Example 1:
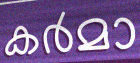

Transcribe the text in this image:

കർമാ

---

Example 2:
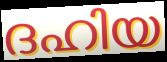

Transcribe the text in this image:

ദഹിയ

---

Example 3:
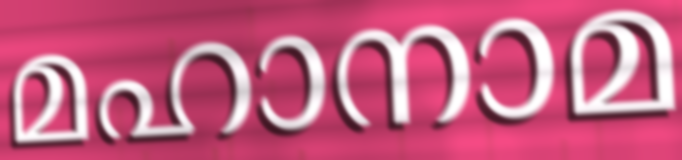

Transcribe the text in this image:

മഹാനാമ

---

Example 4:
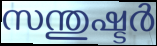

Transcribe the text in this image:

സന്തുഷ്ടർ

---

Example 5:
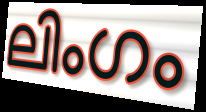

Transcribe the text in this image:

ലിംഗം